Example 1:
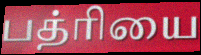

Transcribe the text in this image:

பத்ரியை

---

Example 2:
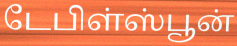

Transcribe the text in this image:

டேபிள்ஸ்பூன்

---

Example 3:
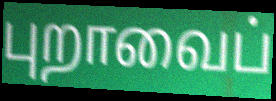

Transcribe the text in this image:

புறாவைப்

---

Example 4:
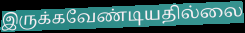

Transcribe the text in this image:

இருக்கவேண்டியதில்லை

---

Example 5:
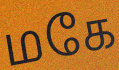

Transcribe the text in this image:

மகே